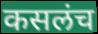
कसलंच